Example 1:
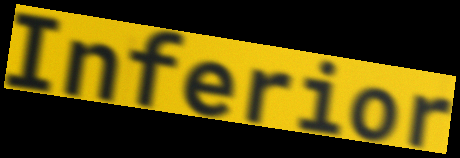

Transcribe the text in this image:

Inferior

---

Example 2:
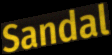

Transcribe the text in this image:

Sandal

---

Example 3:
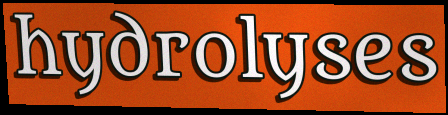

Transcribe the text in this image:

hydrolyses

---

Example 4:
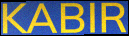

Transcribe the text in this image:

KABIR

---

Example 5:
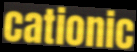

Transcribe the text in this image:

cationic